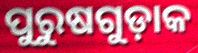
ପୁରୁଷଗୁଡ଼ାକ